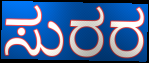
ಸುರರ